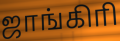
ஜாங்கிரி